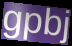
gpbj